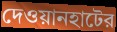
দেওয়ানহাটের